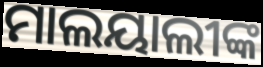
ମାଲୟାଲୀଙ୍କ